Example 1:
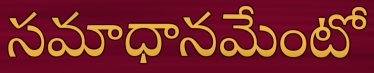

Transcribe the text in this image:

సమాధానమేంటో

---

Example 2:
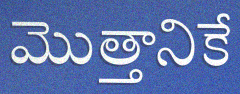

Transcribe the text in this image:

మొత్తానికే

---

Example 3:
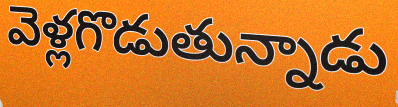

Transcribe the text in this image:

వెళ్లగొడుతున్నాడు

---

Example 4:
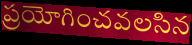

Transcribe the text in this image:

ప్రయోగించవలసిన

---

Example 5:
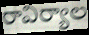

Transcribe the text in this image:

రావిర్యాల